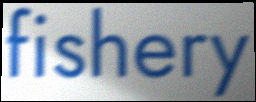
fishery